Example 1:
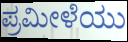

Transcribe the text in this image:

ಪ್ರಮೀಳೆಯು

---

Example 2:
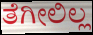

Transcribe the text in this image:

ತೆಗೀಲಿಲ್ಲ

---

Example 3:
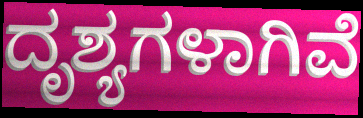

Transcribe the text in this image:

ದೃಶ್ಯಗಳಾಗಿವೆ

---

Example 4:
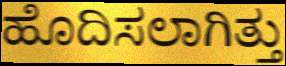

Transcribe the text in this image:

ಹೊದಿಸಲಾಗಿತ್ತು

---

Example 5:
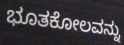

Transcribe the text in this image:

ಭೂತಕೋಲವನ್ನು